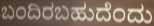
ಬಂದಿರಬಹುದೆಂದು